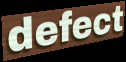
defect